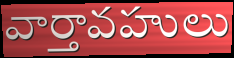
వార్తావహులు